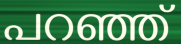
പറഞ്ഞ്